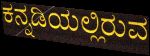
ಕನ್ನಡಿಯಲ್ಲಿರುವ